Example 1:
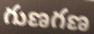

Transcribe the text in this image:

గుణగణ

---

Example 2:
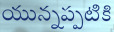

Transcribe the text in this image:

యున్నప్పటికి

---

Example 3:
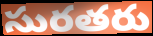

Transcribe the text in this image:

సురతరు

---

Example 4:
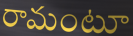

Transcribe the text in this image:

రామంటూ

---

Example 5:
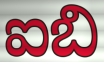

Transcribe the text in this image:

ఐబి